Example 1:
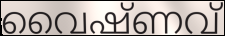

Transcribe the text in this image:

വൈഷ്ണവ്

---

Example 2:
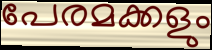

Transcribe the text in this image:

പേരമക്കളും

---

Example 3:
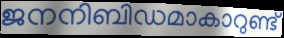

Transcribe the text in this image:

ജനനിബിഡമാകാറുണ്ട്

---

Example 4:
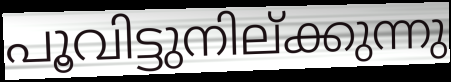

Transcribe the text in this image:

പൂവിട്ടുനില്ക്കുന്നു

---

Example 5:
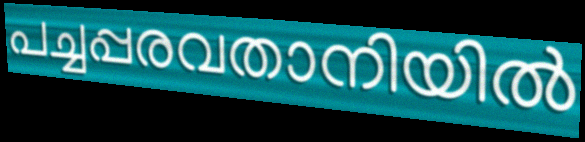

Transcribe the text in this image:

പച്ചപ്പരവതാനിയിൽ